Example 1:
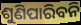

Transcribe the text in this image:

ଶୁଣିପାରିବନି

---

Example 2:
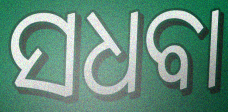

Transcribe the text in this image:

ସଧବା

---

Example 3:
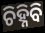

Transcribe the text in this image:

ଚିହ୍ନିବି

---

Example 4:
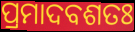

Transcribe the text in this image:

ପ୍ରମାଦବଶତଃ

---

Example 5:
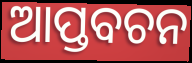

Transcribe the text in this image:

ଆପ୍ତବଚନ